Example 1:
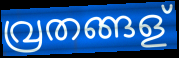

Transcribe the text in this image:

വ്രതങ്ങള്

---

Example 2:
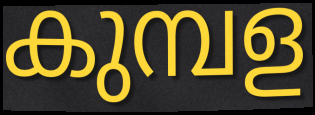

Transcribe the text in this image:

കുമ്പള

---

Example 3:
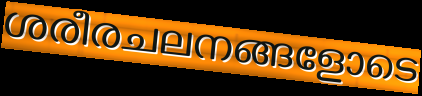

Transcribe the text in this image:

ശരീരചലനങ്ങളോടെ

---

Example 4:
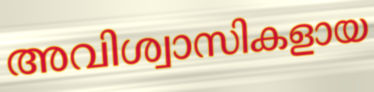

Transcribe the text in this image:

അവിശ്വാസികളായ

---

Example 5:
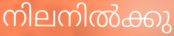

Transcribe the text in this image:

നിലനിൽക്കു